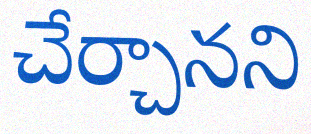
చేర్చానని